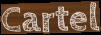
Cartel